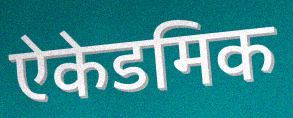
ऐकेडमिक